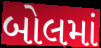
બોલમાં